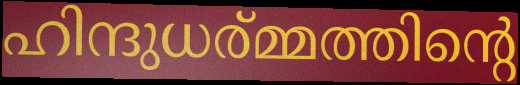
ഹിന്ദുധര്മ്മത്തിന്റെ